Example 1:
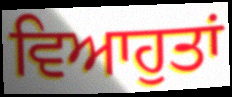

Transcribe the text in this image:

ਵਿਆਹੁਤਾਂ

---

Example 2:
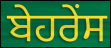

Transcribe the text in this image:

ਬੇਹਰੇਂਸ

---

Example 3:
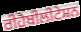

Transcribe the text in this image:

ਰੀਹੈਬੀਲੀਟੇਸ਼ਨ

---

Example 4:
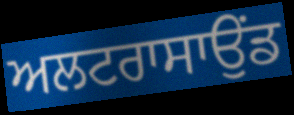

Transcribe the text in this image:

ਅਲਟਰਾਸਾਉਂਡ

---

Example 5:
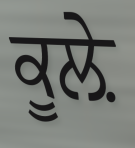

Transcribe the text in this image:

ਕੂਲ਼ੇ